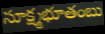
సూక్ష్మభూతంబు